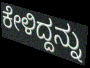
ಕೇಳಿದ್ದನ್ನು